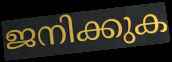
ജനിക്കുക